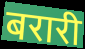
बरारी